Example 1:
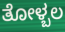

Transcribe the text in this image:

ತೋಳ್ಬಲ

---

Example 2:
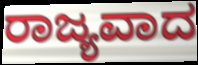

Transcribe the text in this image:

ರಾಜ್ಯವಾದ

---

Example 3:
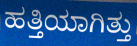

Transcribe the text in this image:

ಹತ್ತಿಯಾಗಿತ್ತು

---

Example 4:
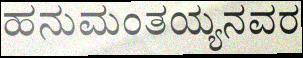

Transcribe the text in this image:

ಹನುಮಂತಯ್ಯನವರ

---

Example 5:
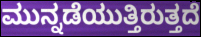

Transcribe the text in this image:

ಮುನ್ನಡೆಯುತ್ತಿರುತ್ತದೆ